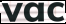
vac